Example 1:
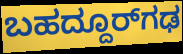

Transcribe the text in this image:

ಬಹದ್ದೂರ್‌ಗಢ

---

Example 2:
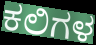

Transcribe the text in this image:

ಕಲಿಗಳ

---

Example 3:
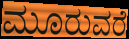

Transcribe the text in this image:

ಮೂರುವರೆ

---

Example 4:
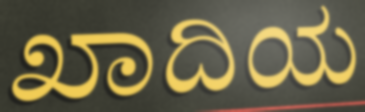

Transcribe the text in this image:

ಖಾದಿಯ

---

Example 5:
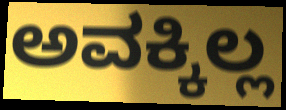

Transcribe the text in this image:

ಅವಕ್ಕಿಲ್ಲ